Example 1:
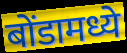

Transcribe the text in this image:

बोंडामध्ये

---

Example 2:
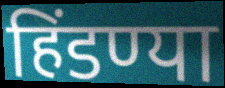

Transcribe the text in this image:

हिंडण्या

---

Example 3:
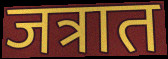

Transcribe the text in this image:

जत्रात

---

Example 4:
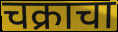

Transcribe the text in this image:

चक्राचा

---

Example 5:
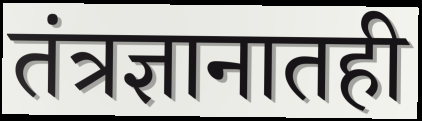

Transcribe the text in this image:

तंत्रज्ञानातही